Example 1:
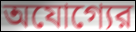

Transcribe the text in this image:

অযোগ্যের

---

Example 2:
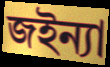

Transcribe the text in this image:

জইন্যা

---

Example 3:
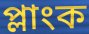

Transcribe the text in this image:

প্লাংক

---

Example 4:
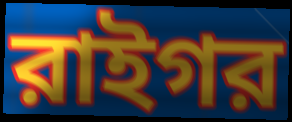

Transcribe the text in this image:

রাইগর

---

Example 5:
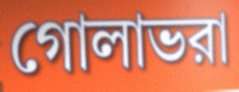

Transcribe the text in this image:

গোলাভরা